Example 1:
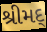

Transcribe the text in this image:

શ્રીમદ્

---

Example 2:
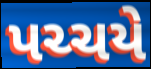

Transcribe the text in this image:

પચ્ચયે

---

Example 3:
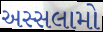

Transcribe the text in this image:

અસ્સલામો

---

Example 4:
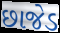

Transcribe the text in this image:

છાજેડ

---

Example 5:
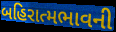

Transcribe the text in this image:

બહિરાત્મભાવની